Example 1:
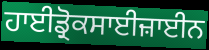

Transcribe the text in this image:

ਹਾਈਡ੍ਰੋਕਸਾਈਜ਼ਾਈਨ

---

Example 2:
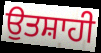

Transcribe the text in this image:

ਉਤਸ਼ਾਹੀ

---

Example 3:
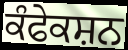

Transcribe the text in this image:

ਕੰਫੇਕਸ਼ਨ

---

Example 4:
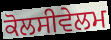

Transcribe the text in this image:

ਕੋਲਸੀਵੇਲਮ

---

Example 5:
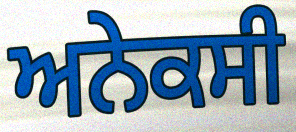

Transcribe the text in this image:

ਅਨੇਕਸੀ